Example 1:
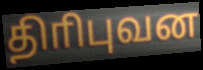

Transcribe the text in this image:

திரிபுவன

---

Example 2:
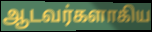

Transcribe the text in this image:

ஆடவர்களாகிய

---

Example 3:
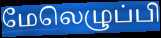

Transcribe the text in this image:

மேலெழுப்பி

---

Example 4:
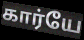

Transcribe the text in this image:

கார்யே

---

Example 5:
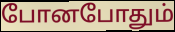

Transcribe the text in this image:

போனபோதும்